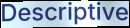
Descriptive